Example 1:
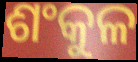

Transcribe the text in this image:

ଶଂକୁଳ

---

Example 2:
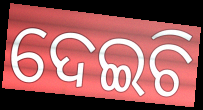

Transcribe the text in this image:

ଦେଇଚି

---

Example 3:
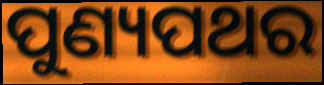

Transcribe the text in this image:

ପୁଣ୍ୟପଥର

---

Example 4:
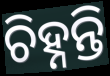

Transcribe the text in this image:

ଚିହ୍ନନ୍ତି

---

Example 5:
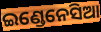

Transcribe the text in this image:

ଇଣ୍ଡେନେସିଆ